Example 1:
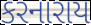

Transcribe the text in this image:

કરનારાય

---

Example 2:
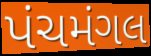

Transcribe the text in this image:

પંચમંગલ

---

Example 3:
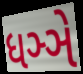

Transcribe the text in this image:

ધઞ્ઞે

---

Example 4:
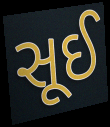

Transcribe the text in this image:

સૂઈ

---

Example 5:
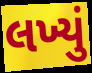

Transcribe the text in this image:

લખ્યું